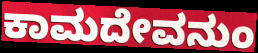
ಕಾಮದೇವನುಂ